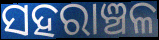
ସହରାଞ୍ଚଳ